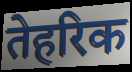
तेहरिक